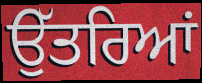
ਉੱਤਰਿਆਂ